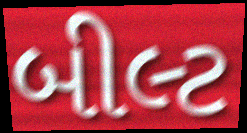
બીલ્ટ